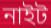
নাইট